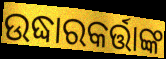
ଉଦ୍ଧାରକର୍ତ୍ତାଙ୍କ